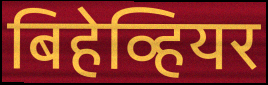
बिहेव्हियर